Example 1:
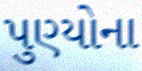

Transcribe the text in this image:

પુણ્યોના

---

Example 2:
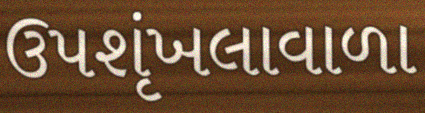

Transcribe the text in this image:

ઉપશૃંખલાવાળા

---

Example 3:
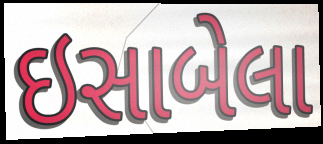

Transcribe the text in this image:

ઇસાબેલા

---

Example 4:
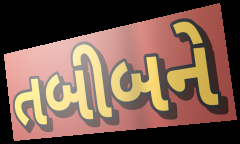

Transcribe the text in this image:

તબીબને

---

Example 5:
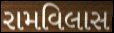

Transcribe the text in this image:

રામવિલાસ